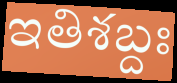
ఇతిశబ్దః